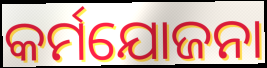
କର୍ମଯୋଜନା